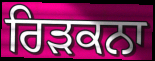
ਰਿੜਕਨਾ